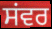
ਸਂਵਰ